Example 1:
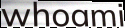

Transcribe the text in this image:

whoami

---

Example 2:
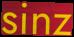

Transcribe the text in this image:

sinz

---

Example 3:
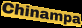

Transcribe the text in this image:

Chinampa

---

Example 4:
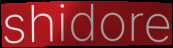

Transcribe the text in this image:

shidore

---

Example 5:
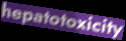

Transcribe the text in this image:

hepatotoxicity